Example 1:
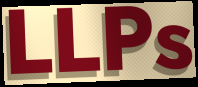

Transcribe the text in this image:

LLPs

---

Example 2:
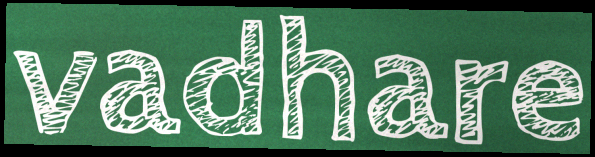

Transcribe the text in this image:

vadhare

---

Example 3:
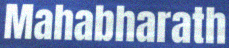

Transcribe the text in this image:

Mahabharath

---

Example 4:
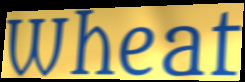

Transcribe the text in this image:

Wheat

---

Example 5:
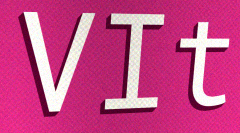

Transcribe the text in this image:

VIt